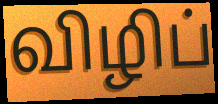
விழிப்